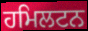
ਹਮਿਲਟਨ